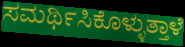
ಸಮರ್ಥಿಸಿಕೊಳ್ಳುತ್ತಾಳೆ